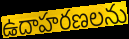
ఉదాహరణలను